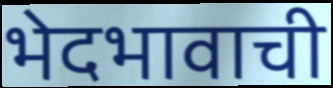
भेदभावाची